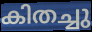
കിതച്ചു